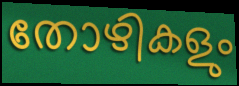
തോഴികളും